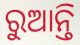
ରୁଆନ୍ତି